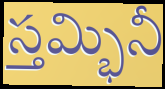
స్తమ్భినీ